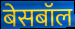
बेसबॉल